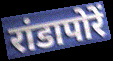
रांडापोरें